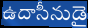
ఉదాసీనుడై